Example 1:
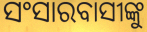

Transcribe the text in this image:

ସଂସାରବାସୀଙ୍କୁ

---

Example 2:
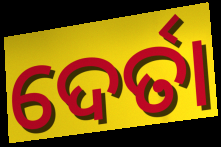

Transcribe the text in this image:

ଦେର୍ତା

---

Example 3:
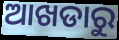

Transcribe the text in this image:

ଆଖଡାରୁ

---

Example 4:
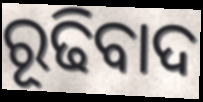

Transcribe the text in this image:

ରୂଢିବାଦ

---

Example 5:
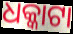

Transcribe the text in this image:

ଧକ୍କାଟା